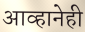
आव्हानेही